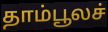
தாம்பூலச்